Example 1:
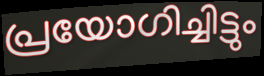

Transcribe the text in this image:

പ്രയോഗിച്ചിട്ടും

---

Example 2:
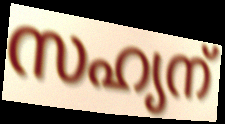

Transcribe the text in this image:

സഹ്യന്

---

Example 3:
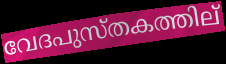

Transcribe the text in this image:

വേദപുസ്തകത്തില്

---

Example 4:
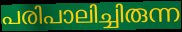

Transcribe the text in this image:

പരിപാലിച്ചിരുന്ന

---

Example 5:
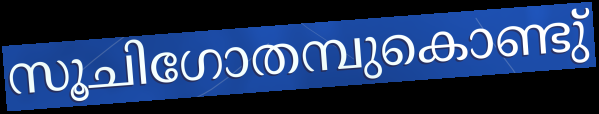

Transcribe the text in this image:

സൂചിഗോതമ്പുകൊണ്ടു്